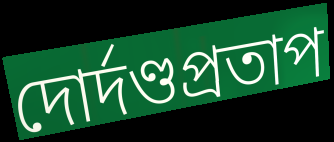
দোর্দণ্ডপ্রতাপ